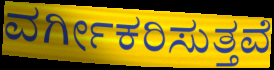
ವರ್ಗೀಕರಿಸುತ್ತವೆ